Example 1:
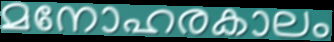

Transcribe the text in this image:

മനോഹരകാലം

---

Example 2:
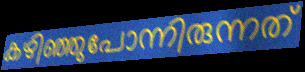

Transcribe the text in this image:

കഴിഞ്ഞുപോന്നിരുന്നത്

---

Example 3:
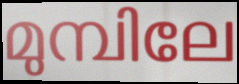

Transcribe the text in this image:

മുമ്പിലേ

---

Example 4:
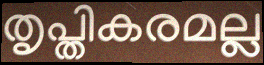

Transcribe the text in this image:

തൃപ്തികരമല്ല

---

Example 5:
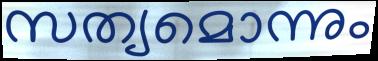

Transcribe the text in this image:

സത്യമൊന്നും